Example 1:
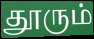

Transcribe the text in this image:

தூரும்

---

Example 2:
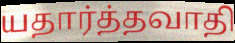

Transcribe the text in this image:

யதார்த்தவாதி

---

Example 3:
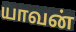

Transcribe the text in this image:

யாவன்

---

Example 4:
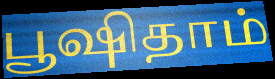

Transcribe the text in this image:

பூஷிதாம்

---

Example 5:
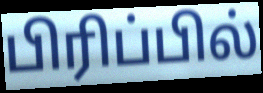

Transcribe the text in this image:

பிரிப்பில்